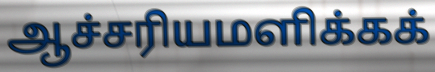
ஆச்சரியமளிக்கக்